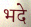
भदे